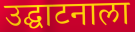
उद्घाटनाला